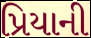
પ્રિયાની